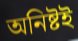
অনিষ্টই